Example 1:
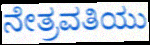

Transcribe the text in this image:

ನೇತ್ರವತಿಯು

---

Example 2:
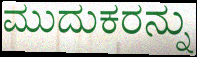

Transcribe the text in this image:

ಮುದುಕರನ್ನು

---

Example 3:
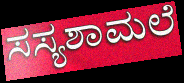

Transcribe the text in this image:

ಸಸ್ಯಶಾಮಲೆ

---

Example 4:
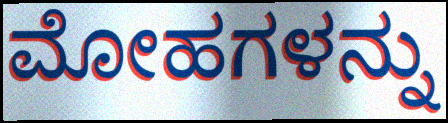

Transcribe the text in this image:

ಮೋಹಗಳನ್ನು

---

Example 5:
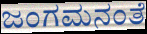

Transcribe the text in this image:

ಜಂಗಮನಂತೆ